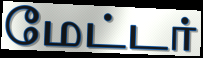
மேட்டர்